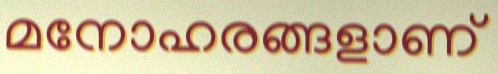
മനോഹരങ്ങളാണ്